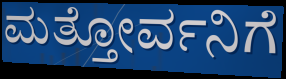
ಮತ್ತೋರ್ವನಿಗೆ